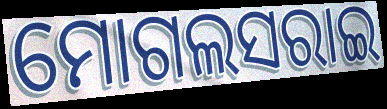
ମୋଗଲସରାଇ